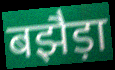
बझैड़ा